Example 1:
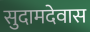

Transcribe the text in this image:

सुदामदेवास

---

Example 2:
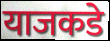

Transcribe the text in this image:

याजकडे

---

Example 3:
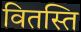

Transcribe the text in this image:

वितस्ति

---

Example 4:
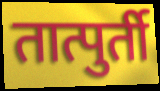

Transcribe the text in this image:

तात्पुर्ती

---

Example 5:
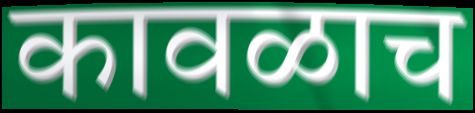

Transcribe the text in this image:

कावळाच